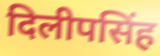
दिलीपसिंह